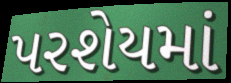
પરશેયમાં